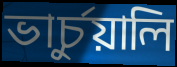
ভার্চুয়ালি